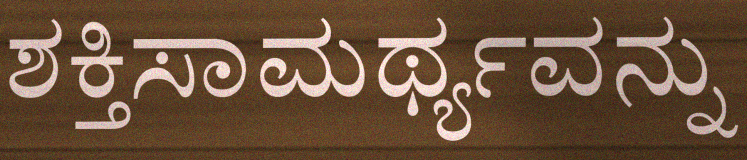
ಶಕ್ತಿಸಾಮರ್ಥ್ಯವನ್ನು